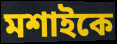
মশাইকে